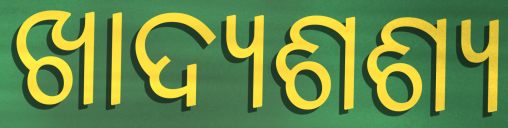
ଖାଦ୍ୟଶଶ୍ୟ